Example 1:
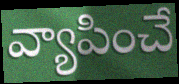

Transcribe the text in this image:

వ్యాపించే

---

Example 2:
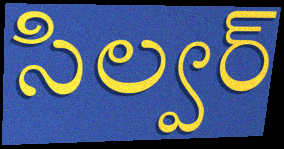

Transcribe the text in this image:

సిల్వర్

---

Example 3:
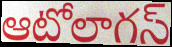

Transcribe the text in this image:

ఆటోలాగస్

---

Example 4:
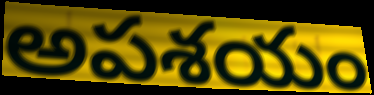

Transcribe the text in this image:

అపశయం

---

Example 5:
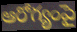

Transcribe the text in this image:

ఆరోగ్యంపై